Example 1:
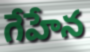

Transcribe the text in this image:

గేహేన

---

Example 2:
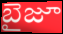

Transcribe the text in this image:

బైజూ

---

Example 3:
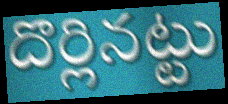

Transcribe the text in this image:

దొర్లినట్టు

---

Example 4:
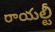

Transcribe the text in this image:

రాయల్టీ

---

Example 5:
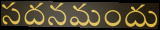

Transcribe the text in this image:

సదనమందు